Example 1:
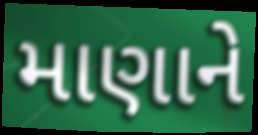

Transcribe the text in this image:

માણાને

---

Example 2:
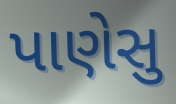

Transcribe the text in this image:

પાણેસુ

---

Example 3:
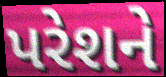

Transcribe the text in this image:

પરેશને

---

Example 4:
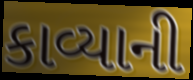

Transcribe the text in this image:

કાવ્યાની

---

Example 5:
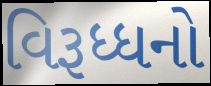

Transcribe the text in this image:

વિરૂધ્ધનો